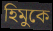
হিমুকে